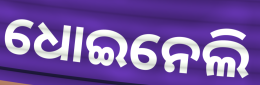
ଧୋଇନେଲି